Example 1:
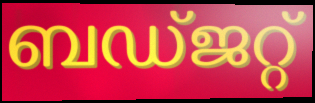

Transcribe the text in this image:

ബഡ്ജറ്റ്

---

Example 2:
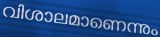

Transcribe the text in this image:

വിശാലമാണെന്നും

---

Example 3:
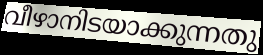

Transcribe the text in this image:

വീഴാനിടയാക്കുന്നതു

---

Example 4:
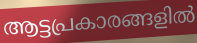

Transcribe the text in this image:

ആട്ടപ്രകാരങ്ങളിൽ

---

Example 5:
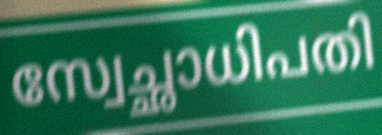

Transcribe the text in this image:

സ്വേച്ഛാധിപതി